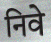
निवे